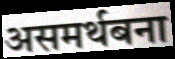
असमर्थबना